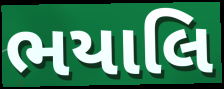
ભયાલિ